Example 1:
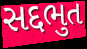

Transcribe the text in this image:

સદ્દભુત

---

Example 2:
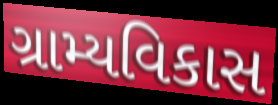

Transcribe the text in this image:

ગ્રામ્યવિકાસ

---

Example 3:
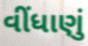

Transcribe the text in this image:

વીંધાણું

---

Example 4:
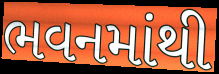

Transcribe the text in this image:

ભવનમાંથી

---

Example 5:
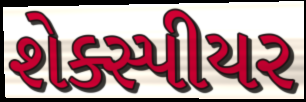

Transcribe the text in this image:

શેક્સ્પીયર